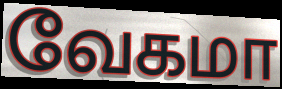
வேகமா